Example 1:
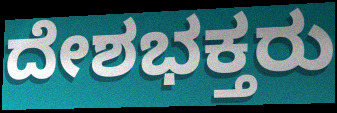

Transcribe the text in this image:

ದೇಶಭಕ್ತರು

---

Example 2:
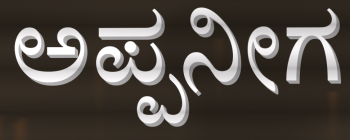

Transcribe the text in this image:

ಅಪ್ಪನೀಗ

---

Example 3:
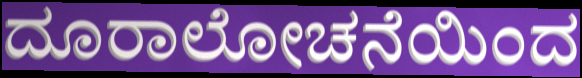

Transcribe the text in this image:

ದೂರಾಲೋಚನೆಯಿಂದ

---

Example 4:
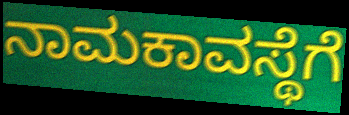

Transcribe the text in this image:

ನಾಮಕಾವಸ್ಥೆಗೆ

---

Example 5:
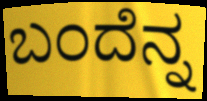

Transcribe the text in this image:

ಬಂದೆನ್ನ